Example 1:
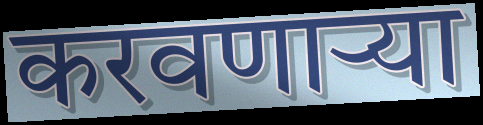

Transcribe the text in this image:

करवणाऱ्या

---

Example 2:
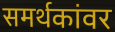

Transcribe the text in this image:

समर्थकांवर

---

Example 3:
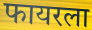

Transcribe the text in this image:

फायरला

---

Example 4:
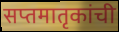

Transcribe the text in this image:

सप्तमातृकांची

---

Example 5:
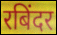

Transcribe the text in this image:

रबिंदर